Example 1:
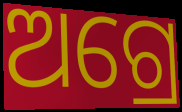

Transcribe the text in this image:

ଅଗ୍ରେ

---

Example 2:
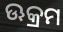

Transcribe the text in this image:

ଊକ୍ରମ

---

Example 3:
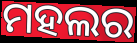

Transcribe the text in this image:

ମହଲର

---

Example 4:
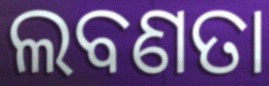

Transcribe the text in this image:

ଲବଣତା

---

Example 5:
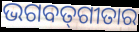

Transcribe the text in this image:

ଭଗବତ୍‍ଗୀତାର